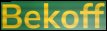
Bekoff